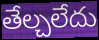
తేల్చలేదు